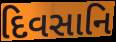
દિવસાનિ